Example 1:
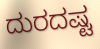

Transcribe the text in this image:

ದುರದಷ್ಟ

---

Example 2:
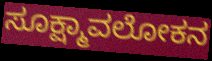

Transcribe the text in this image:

ಸೂಕ್ಷ್ಮಾವಲೋಕನ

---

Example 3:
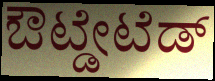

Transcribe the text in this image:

ಔಟ್ಡೇಟೆಡ್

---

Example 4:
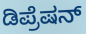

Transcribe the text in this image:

ಡಿಪ್ರೆಷನ್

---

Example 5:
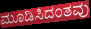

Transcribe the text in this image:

ಮೂಡಿಸಿದಂತವು